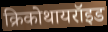
क्रिकोथायरॉइड